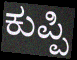
ಕುಪ್ಪಿ